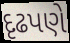
દૃઢપણે